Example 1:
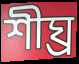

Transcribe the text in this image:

শীঘ্র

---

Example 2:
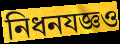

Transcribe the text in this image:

নিধনযজ্ঞও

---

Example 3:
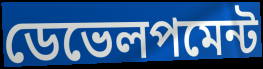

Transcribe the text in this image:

ডেভেলপমেন্ট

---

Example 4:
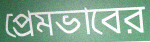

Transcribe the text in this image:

প্রেমভাবের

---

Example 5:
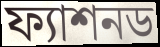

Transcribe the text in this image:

ফ্যাশনড